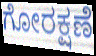
ಗೋರಕ್ಷಣೆ